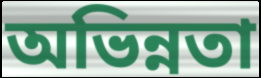
অভিন্নতা